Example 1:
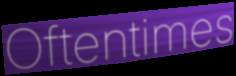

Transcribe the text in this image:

Oftentimes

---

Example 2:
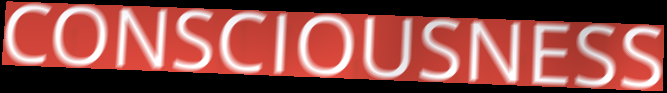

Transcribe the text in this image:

CONSCIOUSNESS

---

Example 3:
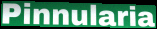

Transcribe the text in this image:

Pinnularia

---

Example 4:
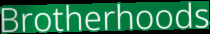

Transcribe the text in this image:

Brotherhoods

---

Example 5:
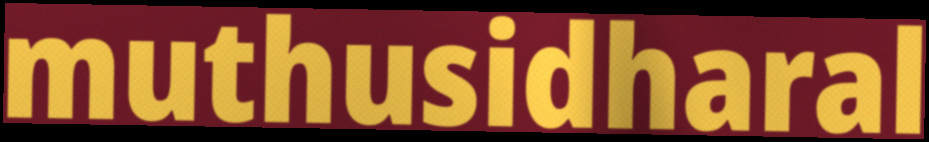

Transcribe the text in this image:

muthusidharal